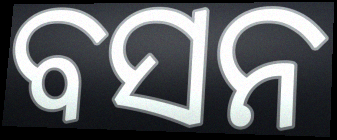
ବସନ